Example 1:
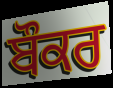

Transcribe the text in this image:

ਬੌਕਰ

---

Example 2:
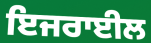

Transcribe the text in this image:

ਇਜਰਾਈਲ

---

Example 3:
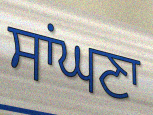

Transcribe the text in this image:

ਸਾਂਘਣਾ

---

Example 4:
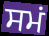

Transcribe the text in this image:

ਸਮਂ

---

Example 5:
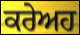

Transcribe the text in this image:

ਕਰੇਅਹ